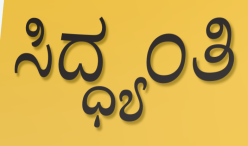
ಸಿದ್ಧ್ಯಂತಿ